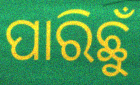
ପାରିଛୁଁ